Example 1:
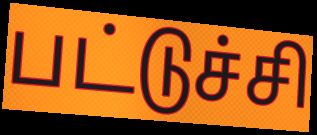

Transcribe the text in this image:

பட்டுச்சி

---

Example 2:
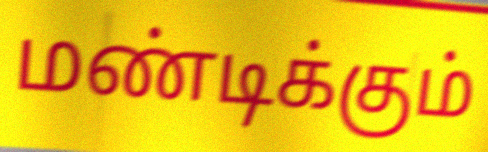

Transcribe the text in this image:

மண்டிக்கும்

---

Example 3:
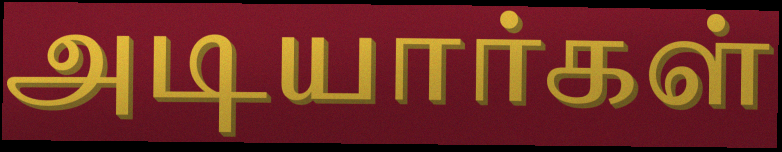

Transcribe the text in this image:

அடியார்கள்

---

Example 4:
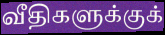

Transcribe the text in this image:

வீதிகளுக்குக்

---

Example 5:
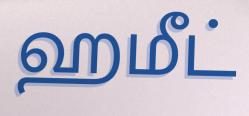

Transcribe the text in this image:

ஹமீட்